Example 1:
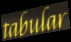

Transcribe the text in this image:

tabular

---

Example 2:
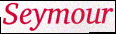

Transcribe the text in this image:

Seymour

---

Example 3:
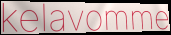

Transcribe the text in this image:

kelavomme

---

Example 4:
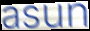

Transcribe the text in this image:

asun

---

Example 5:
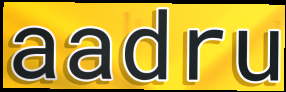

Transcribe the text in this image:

aadru